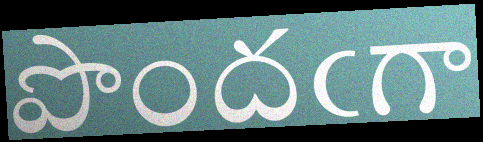
పొందఁగా